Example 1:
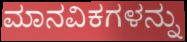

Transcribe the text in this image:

ಮಾನವಿಕಗಳನ್ನು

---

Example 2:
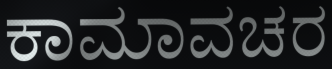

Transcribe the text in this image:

ಕಾಮಾವಚರ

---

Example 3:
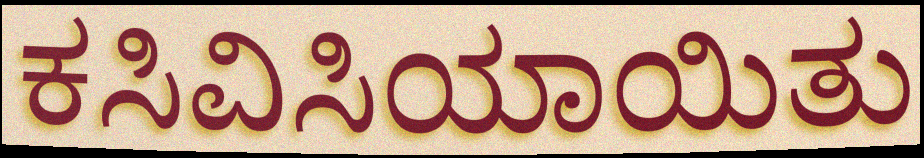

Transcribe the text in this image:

ಕಸಿವಿಸಿಯಾಯಿತು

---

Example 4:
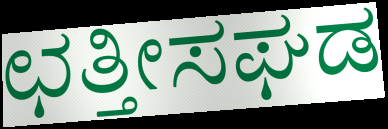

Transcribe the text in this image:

ಛತ್ತೀಸಘಡ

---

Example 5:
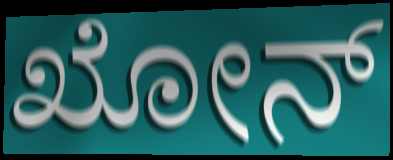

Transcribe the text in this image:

ಖೋನ್